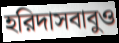
হরিদাসবাবুও